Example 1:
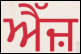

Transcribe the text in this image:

ਐੱਜ਼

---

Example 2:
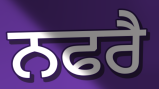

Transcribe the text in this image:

ਨਫਰੈ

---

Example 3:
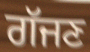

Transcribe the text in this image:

ਗੱਜਣ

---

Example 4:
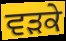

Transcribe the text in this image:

ਵੜਕੇ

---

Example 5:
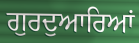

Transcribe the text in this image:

ਗੁਰਦੁਆਰਿਆਂ